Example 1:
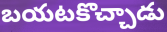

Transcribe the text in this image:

బయటకొచ్చాడు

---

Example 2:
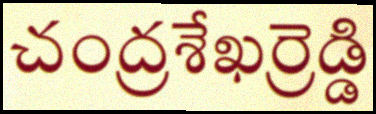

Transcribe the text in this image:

చంద్రశేఖర్రెడ్డి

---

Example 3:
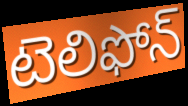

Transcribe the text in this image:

టెలిఫోన్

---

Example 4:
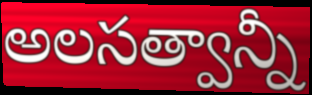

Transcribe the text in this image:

అలసత్వాన్నీ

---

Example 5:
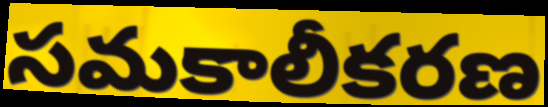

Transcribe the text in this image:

సమకాలీకరణ